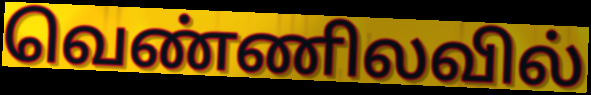
வெண்ணிலவில்